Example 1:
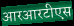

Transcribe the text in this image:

आरआरटीएस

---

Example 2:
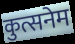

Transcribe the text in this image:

कुत्सनेम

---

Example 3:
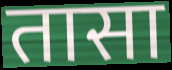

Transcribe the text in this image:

तासा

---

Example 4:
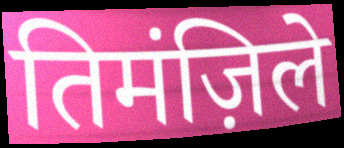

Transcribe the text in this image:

तिमंज़िले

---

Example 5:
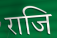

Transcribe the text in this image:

राजि